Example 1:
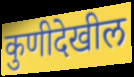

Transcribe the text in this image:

कुणीदेखील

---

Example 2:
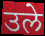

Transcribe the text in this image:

उले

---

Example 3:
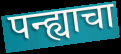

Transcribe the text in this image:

पन्ह्याचा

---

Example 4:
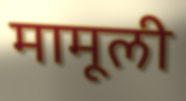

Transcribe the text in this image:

मामूली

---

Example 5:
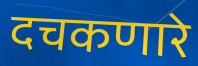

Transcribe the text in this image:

दचकणारे